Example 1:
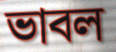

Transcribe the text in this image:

ভাবল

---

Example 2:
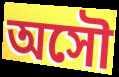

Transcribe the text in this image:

অসৌ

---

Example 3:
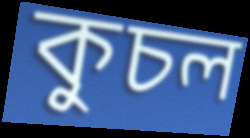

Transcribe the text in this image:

কুচল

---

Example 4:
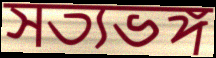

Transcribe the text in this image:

সত্যভঙ্গ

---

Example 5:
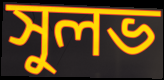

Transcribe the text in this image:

সুলভ